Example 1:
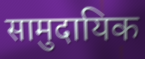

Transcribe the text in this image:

सामुदायिक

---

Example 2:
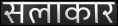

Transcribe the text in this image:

सलाकार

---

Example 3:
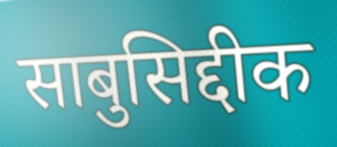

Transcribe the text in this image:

साबुसिद्दीक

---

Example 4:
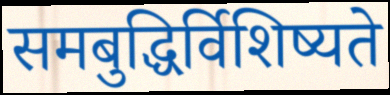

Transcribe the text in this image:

समबुद्धिर्विशिष्यते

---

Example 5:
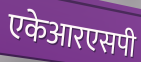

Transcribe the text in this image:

एकेआरएसपी